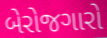
બેરોજગારો